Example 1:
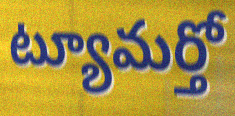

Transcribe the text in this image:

ట్యూమర్తో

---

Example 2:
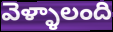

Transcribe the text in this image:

వెళ్ళాలంది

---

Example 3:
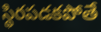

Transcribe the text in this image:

స్థిరపడకపోతే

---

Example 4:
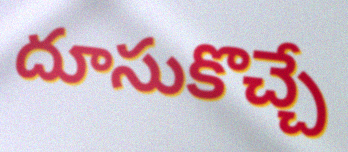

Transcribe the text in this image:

దూసుకొచ్చే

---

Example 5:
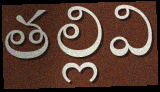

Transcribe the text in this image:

తల్లివి